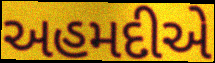
અહમદીએ